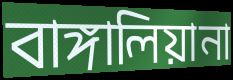
বাঙ্গালিয়ানা